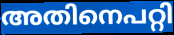
അതിനെപറ്റി